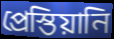
প্রেস্তিয়ানি